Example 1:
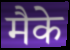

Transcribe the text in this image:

मैके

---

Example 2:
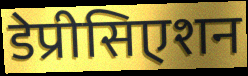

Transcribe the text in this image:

डेप्रीसिएशन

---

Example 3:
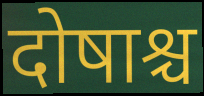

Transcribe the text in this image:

दोषाश्च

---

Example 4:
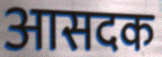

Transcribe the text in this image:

आसदक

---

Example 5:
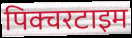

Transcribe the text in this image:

पिक्चरटाइम